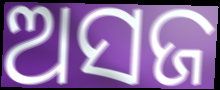
ଅସଜ